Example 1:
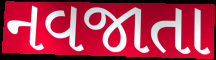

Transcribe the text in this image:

નવજાતા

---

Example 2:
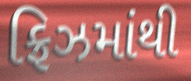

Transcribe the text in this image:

ફ્રિઝમાંથી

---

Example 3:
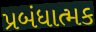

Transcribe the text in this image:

પ્રબંધાત્મક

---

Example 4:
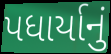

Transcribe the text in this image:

પધાર્યાનું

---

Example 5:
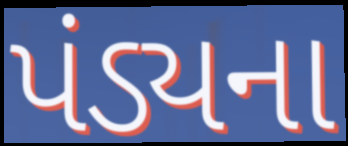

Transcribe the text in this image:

પંડ્યના